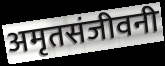
अमृतसंजीवनी